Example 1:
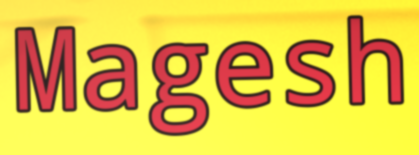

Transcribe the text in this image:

Magesh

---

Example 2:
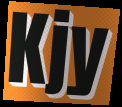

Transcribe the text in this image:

Kjy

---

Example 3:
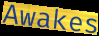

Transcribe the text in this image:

Awakes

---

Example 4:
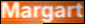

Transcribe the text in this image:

Margart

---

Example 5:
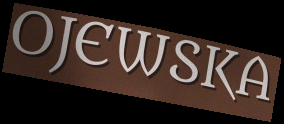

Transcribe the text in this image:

OJEWSKA